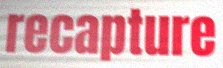
recapture